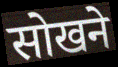
सोखने